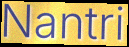
Nantri